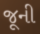
જૂની